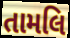
તામલિ